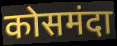
कोसमंदा